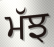
ਮੱਝ